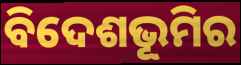
ବିଦେଶଭୂମିର